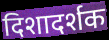
दिशादर्शक